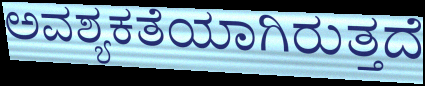
ಅವಶ್ಯಕತೆಯಾಗಿರುತ್ತದೆ